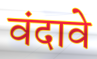
वंदावे